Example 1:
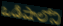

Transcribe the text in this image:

ఒడిషాలోని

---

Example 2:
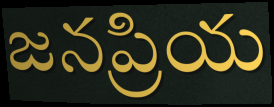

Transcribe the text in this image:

జనప్రియ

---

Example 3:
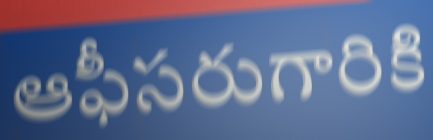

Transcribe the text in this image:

ఆఫీసరుగారికి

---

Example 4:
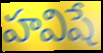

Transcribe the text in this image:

హవిషే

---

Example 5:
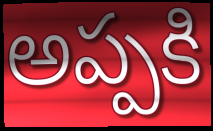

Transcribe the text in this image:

అప్పకి